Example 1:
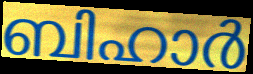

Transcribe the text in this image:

ബിഹാർ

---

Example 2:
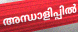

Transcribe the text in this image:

അന്ധാളിപ്പിൽ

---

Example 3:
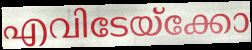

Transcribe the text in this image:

എവിടേയ്ക്കോ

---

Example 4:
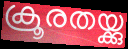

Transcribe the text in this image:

ക്രൂരതയ്ക്കു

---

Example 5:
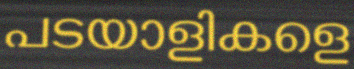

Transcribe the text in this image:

പടയാളികളെ